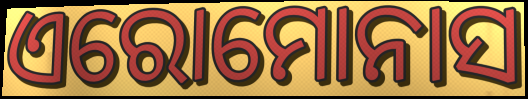
ଏରୋମୋନାସ